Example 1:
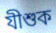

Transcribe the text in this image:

যীশুক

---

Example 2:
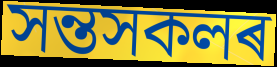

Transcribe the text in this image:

সন্তসকলৰ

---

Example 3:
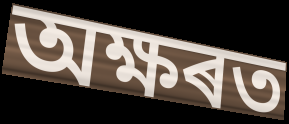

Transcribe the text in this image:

অক্ষৰত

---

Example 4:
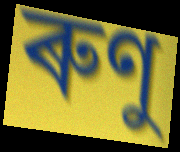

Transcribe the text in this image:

ৰুণু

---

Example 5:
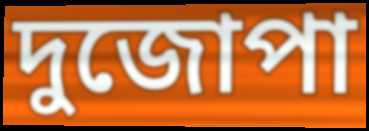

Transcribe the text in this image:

দুজোপা